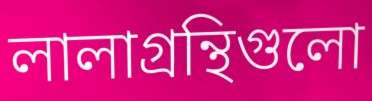
লালাগ্রন্থিগুলো